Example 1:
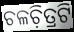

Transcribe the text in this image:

ଚଳଚ଼ିତ୍ରଟି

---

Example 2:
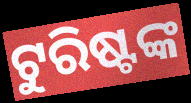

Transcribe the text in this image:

ଟୁରିଷ୍ଟଙ୍କ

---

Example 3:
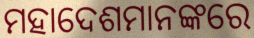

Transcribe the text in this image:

ମହାଦେଶମାନଙ୍କରେ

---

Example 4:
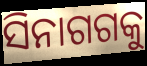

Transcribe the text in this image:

ସିନାଗଗକୁ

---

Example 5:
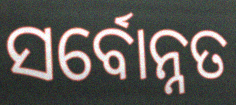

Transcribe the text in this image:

ସର୍ବୋନ୍ନତ